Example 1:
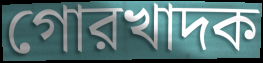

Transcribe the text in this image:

গোরখাদক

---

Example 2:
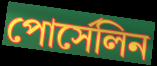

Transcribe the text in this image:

পোর্সেলিন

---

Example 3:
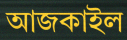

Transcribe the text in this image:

আজকাইল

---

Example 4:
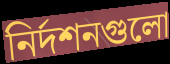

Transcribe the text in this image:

নির্দশনগুলো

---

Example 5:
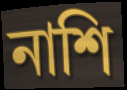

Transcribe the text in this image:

নাশি